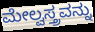
ಮೇಲ್ವಸ್ತ್ರವನ್ನು